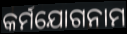
କର୍ମଯୋଗନାମ